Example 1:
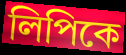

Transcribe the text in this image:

লিপিকে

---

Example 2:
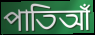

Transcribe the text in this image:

পাতিআঁ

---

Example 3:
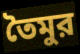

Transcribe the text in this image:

তৈমুর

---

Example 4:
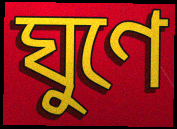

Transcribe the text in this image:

ঘুণে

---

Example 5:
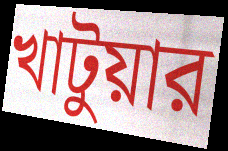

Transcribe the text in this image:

খাটুয়ার